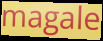
magale